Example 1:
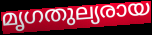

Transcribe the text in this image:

മൃഗതുല്യരായ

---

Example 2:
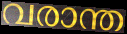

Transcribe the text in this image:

വരാന്ത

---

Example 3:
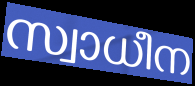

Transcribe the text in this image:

സ്വാധീന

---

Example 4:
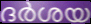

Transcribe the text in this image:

ദർശയ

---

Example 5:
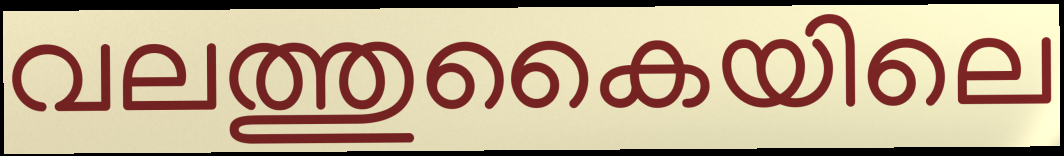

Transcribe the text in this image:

വലത്തുകൈയിലെ